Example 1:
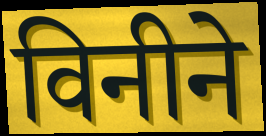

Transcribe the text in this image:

विनीने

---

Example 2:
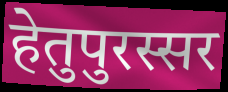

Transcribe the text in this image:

हेतुपुरस्सर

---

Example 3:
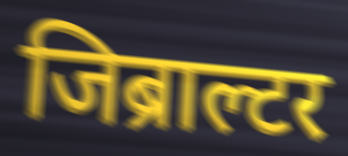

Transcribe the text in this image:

जिब्राल्टर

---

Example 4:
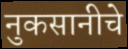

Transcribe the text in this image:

नुकसानीचे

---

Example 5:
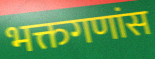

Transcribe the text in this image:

भक्तगणांस